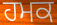
ਹਮਕ